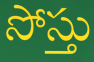
సోస్తు